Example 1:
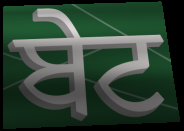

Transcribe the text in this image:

ਬੇਟ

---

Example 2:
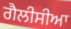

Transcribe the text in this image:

ਗੈਲੀਸੀਆ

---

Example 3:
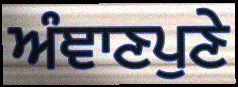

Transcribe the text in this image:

ਅੰਞਾਣਪੁਣੇ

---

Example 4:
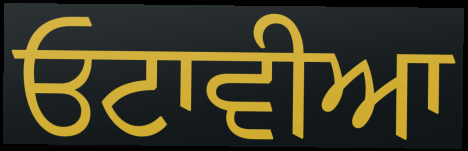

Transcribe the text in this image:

ਓਟਾਵੀਆ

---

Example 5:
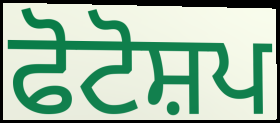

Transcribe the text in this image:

ਫੋਟੋਸ਼ਪ